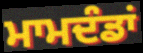
ਮਾਮਦੰਡਾਂ